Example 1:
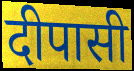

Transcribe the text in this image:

दीपासी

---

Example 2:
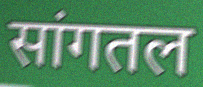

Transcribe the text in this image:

सांगतल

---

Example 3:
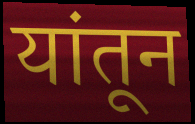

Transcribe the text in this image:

यांतून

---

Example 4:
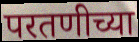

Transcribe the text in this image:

परतणीच्या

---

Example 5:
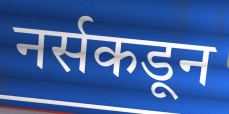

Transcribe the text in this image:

नर्सकडून